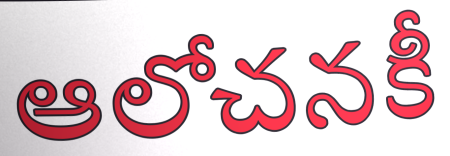
ఆలోచనకీ